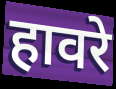
हावरे